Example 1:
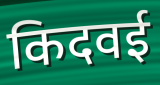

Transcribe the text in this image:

किदवई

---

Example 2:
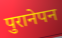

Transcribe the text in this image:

पुरानेपन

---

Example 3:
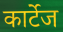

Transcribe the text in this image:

कार्टेज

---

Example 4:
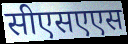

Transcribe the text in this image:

सीएसएएस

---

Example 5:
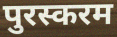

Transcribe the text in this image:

पुरस्करम